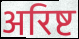
अरिष्ट